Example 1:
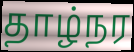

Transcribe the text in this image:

தாழ்நர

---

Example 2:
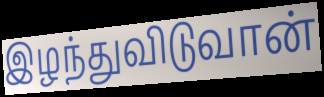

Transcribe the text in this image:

இழந்துவிடுவான்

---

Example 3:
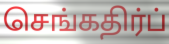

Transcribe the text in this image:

செங்கதிர்ப்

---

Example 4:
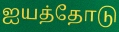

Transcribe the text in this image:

ஐயத்தோடு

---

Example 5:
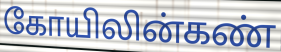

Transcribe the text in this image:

கோயிலின்கண்